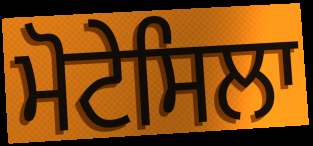
ਮੋਟੇਸਿਲਾ